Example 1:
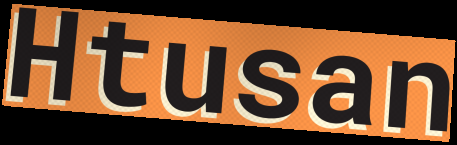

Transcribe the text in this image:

Htusan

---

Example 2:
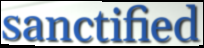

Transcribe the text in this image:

sanctified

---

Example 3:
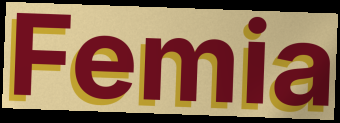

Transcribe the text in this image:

Femia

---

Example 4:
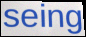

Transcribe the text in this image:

seing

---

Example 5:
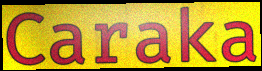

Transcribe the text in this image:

Caraka